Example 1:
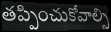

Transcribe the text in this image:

తప్పించుకోవాల్సి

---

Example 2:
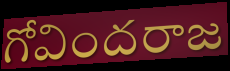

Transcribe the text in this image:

గోవిందరాజ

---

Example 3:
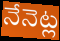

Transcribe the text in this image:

నేనెట్ల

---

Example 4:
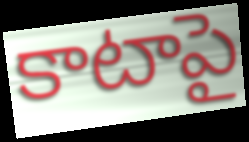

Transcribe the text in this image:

కాటాపై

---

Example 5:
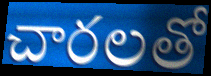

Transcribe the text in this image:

చారలతో